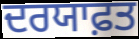
ਦਰਯਾਫ਼ਤ